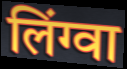
लिंग्वा